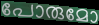
പോരുമോ